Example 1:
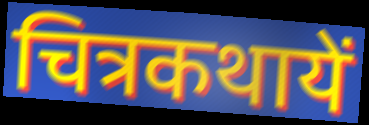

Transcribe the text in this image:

चित्रकथायें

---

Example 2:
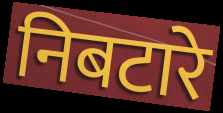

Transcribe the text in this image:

निबटारे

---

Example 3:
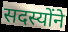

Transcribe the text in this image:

सदस्योंने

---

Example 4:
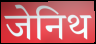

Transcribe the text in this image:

जेनिथ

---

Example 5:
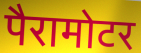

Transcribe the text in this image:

पैरामोटर